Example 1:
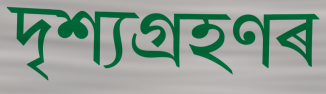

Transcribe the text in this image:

দৃশ্যগ্ৰহণৰ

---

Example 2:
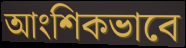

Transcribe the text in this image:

আংশিকভাবে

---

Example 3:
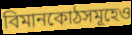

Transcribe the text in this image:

বিমানকোঠসমূহেও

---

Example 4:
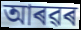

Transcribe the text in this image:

আৰৱৰ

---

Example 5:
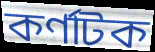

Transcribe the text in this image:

কৰ্ণাটক